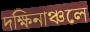
দক্ষিনাঞ্চলে